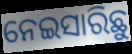
ନେଇସାରିଛୁ